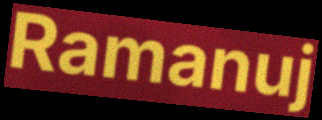
Ramanuj